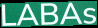
LABAs